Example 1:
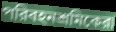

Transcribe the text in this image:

পরিবহনশ্রমিকেরা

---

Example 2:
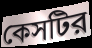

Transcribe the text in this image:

কেসটির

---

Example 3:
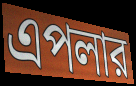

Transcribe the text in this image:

এপলার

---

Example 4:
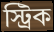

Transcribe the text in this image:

স্ট্রিক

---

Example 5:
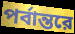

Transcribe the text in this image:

পর্বান্তরে